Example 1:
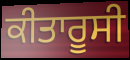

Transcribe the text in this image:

ਕੀਤਾਰੂਸੀ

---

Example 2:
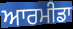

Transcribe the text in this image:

ਆਰਮੀਡਾ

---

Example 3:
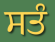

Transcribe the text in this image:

ਸਤੰ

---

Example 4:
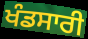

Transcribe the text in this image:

ਖੰਡਸਾਰੀ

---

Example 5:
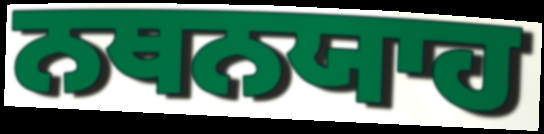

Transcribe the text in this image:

ਨਥਨਯਾਹ